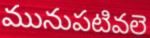
మునుపటివలె